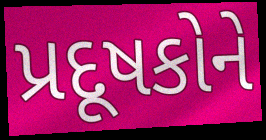
પ્રદૂષકોને